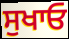
ਸੁਖਾਓ